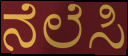
ನೆಲೆಸಿ